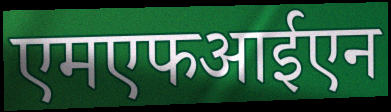
एमएफआईएन